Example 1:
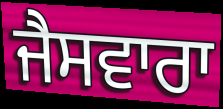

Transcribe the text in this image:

ਜੈਸਵਾਰਾ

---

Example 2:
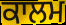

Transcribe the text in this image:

ਕਾਲਮ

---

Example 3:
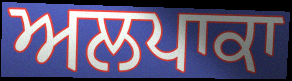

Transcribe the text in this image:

ਅਲਪਾਕਾ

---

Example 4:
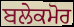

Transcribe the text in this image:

ਬਲੇਕਮੋਰ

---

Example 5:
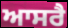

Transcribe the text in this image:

ਆਸਰੈ